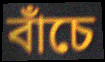
বাঁচে